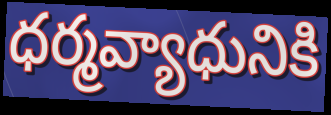
ధర్మవ్యాధునికి